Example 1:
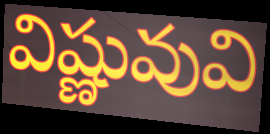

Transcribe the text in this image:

విష్ణువువి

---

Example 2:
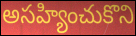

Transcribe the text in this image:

అసహ్యించుకొని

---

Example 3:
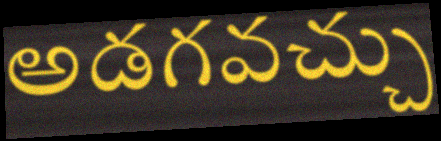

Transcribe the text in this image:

అడగవచ్చు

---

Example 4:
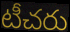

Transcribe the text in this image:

టీచరు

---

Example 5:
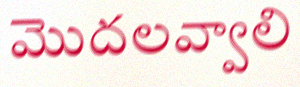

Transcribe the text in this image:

మొదలవ్వాలి